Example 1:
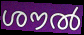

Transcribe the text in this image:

ശൗൽ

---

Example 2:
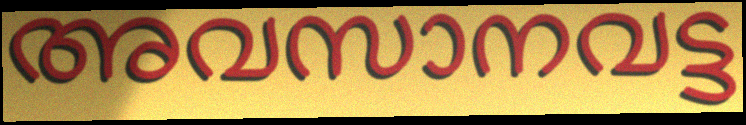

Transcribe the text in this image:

അവസാനവട്ട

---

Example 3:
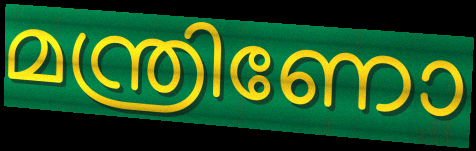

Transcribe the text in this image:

മന്ത്രിണോ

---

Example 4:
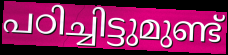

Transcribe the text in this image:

പഠിച്ചിട്ടുമുണ്ട്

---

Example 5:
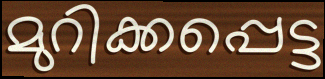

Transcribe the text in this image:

മുറിക്കപ്പെട്ട